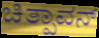
ಚಿತ್ಪಾವನ್